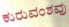
ಕುರುವಂಶವು